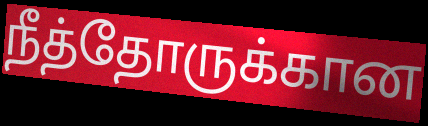
நீத்தோருக்கான